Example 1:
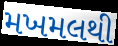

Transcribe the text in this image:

મખમલથી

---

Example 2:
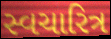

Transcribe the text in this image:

સ્વચારિત્ર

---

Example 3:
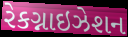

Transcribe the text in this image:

રેકગ્નાઇઝેશન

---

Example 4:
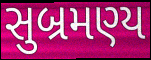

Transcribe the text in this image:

સુબ્રમણ્ય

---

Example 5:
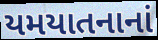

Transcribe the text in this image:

યમયાતનાનાં